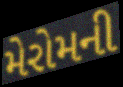
મેરોમની